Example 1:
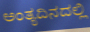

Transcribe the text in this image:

ಅಂತ್ಯದಿನದಲ್ಲಿ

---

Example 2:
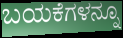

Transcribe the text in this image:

ಬಯಕೆಗಳನ್ನೂ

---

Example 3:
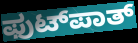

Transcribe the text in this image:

ಫುಟ್‍ಪಾತ್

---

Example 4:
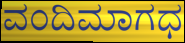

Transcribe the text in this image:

ವಂದಿಮಾಗಧ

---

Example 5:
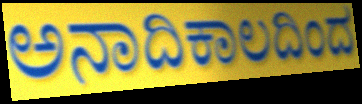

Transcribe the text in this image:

ಅನಾದಿಕಾಲದಿಂದ